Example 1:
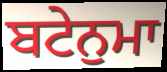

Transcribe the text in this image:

ਬਟੇਨੁਮਾ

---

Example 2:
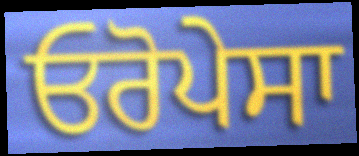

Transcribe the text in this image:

ਓਰੋਪੇਸਾ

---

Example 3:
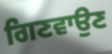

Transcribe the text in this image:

ਗਿਣਵਾਉਣ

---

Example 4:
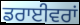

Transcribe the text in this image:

ਡਰਾਈਵਰਾਂ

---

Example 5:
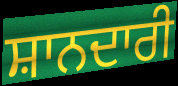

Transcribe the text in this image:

ਸ਼ਾਨਦਾਰੀ